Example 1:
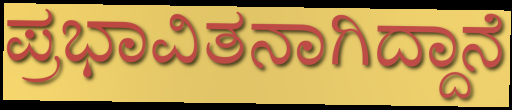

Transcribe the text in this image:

ಪ್ರಭಾವಿತನಾಗಿದ್ದಾನೆ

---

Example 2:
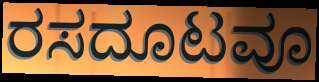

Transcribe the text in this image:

ರಸದೂಟವೂ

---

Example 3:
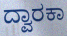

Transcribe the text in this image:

ದ್ವಾರಕಾ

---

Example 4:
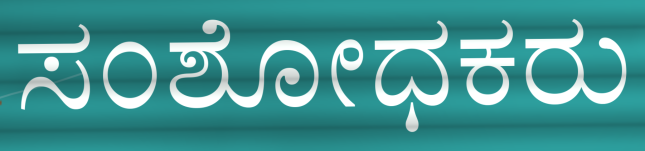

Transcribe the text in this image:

ಸಂಶೋಧಕರು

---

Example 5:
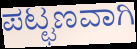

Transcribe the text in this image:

ಪಟ್ಟಣವಾಗಿ